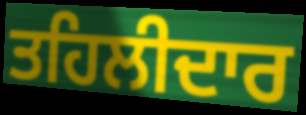
ਤਹਿਲੀਦਾਰ